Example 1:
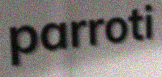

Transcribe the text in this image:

parroti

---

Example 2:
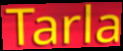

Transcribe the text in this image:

Tarla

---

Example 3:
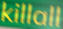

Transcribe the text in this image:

killall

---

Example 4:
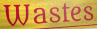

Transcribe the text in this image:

Wastes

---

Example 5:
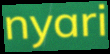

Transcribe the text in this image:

nyari